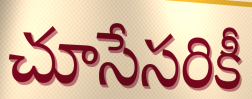
చూసేసరికీ